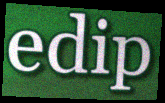
edip